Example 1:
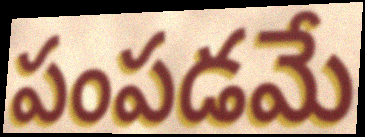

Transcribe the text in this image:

పంపడమే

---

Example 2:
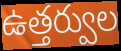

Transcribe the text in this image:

ఉత్తర్వుల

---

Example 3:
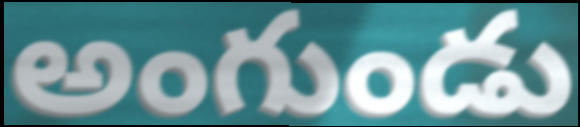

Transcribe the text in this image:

అంగుండు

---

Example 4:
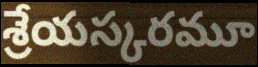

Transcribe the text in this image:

శ్రేయస్కరమూ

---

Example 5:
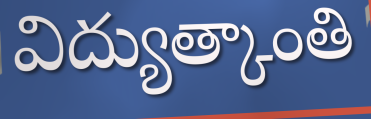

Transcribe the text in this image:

విద్యుత్కాంతి